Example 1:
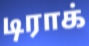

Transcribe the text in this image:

டிராக்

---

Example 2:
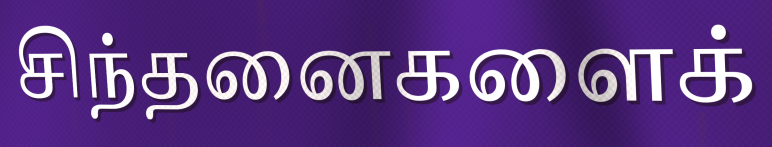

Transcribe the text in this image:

சிந்தனைகளைக்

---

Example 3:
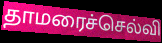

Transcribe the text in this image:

தாமரைச்செல்வி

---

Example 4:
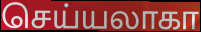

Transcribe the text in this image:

செய்யலாகா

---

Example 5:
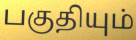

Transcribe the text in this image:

பகுதியும்